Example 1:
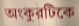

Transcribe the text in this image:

অংকুরটিকে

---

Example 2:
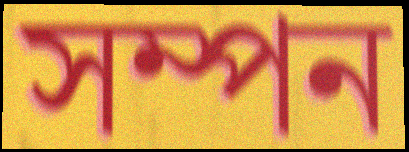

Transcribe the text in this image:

সম্পন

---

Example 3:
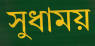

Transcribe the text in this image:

সুধাময়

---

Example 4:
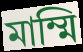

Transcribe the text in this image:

মাম্মি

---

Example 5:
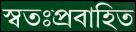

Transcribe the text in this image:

স্বতঃপ্রবাহিত